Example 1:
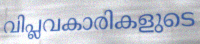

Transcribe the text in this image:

വിപ്ലവകാരികളുടെ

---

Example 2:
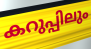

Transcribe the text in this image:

കറുപ്പിലും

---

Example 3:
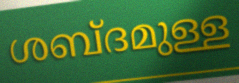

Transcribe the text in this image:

ശബ്ദമുള്ള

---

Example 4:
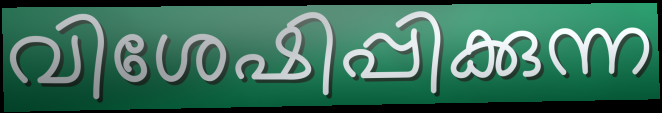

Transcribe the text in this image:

വിശേഷിപ്പിക്കുന്ന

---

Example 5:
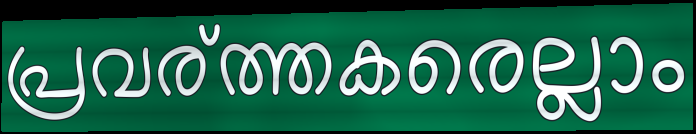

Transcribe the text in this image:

പ്രവര്ത്തകരെല്ലാം